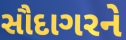
સૌદાગરને